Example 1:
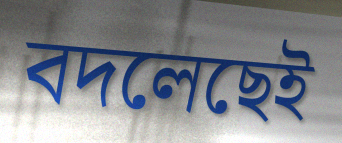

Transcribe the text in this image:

বদলেছেই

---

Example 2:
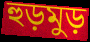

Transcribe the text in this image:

হুড়মুড়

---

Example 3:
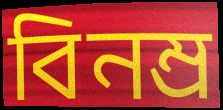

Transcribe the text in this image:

বিনম্র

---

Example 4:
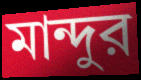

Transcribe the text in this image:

মান্দুর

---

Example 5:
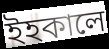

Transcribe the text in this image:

ইহকালে